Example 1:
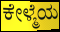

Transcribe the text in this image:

ಕೇಳ್ಮೆಯ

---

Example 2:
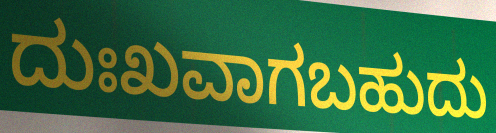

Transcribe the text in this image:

ದುಃಖವಾಗಬಹುದು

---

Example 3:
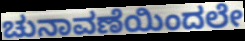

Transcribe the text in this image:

ಚುನಾವಣೆಯಿಂದಲೇ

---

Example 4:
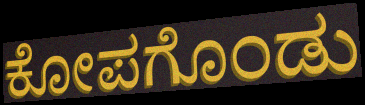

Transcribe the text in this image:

ಕೋಪಗೊಂಡು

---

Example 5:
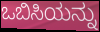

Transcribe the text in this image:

ಒಬಿಸಿಯನ್ನು